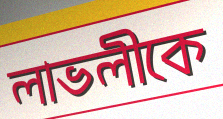
লাভলীকে